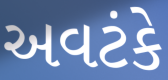
અવટંકે